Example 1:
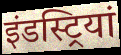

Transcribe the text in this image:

इंडस्ट्रियां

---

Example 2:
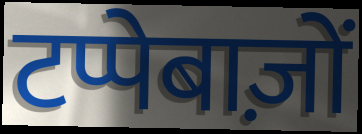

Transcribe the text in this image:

टप्पेबाज़ों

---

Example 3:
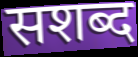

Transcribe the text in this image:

सशब्द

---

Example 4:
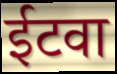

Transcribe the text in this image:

ईटवा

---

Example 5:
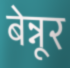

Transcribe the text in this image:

बेन्नूर